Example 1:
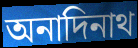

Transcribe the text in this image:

অনাদিনাথ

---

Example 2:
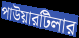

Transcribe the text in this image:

পাউয়ারটিলার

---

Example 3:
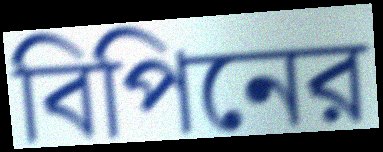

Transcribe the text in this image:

বিপিনের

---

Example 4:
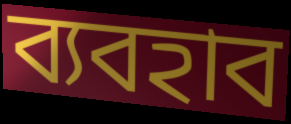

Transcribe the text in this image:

ব্যবহাব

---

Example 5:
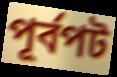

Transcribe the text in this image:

পূর্বপট